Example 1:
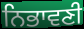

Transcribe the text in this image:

ਨਿਭਾਵਣੀ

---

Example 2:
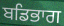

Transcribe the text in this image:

ਬਡਿਭਾਗ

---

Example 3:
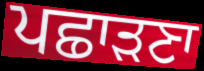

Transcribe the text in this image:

ਪਛਾੜਣਾ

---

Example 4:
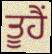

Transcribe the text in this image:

ਤੂਹੈਂ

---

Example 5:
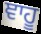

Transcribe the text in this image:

ਞਾਹੂ